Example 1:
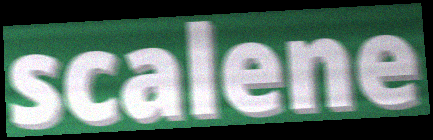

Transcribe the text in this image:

scalene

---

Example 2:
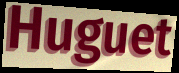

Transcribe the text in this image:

Huguet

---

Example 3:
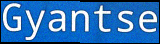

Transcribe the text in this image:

Gyantse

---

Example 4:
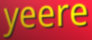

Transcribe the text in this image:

yeere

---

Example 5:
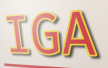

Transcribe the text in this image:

IGA